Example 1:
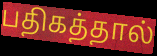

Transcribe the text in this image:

பதிகத்தால்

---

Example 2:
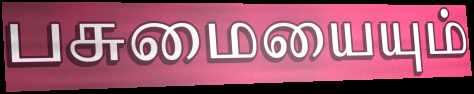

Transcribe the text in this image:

பசுமையையும்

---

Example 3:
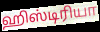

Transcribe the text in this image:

ஹிஸ்டிரியா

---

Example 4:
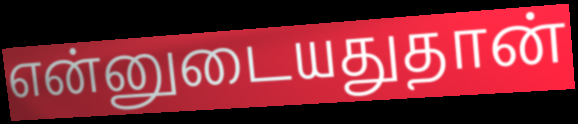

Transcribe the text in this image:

என்னுடையதுதான்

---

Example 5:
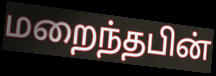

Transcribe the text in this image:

மறைந்தபின்